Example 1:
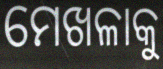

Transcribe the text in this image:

ମେଖଳାକୁ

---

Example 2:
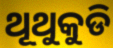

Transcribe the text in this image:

ଥୂଥୁକୁଡି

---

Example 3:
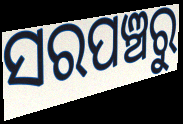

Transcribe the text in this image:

ସରପଞ୍ଚରୁ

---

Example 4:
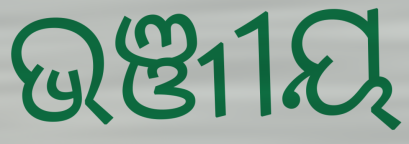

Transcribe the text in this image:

ଭଞ୍ଜୀୟ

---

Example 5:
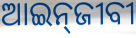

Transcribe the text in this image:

ଆଇନ୍‌ଜୀବୀ